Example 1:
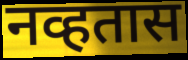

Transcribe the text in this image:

नव्हतास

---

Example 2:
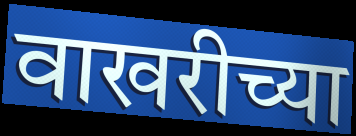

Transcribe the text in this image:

वाखरीच्या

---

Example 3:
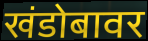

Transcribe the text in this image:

खंडोबावर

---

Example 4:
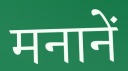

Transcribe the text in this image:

मनानें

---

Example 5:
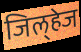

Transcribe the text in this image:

जिल्हेज